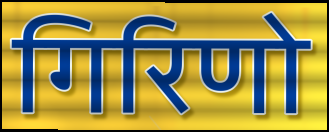
गिरिणो